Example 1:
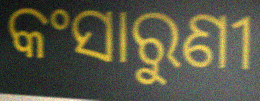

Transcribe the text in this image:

କଂସାରୁଣୀ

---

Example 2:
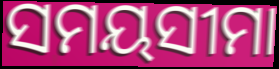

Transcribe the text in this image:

ସମୟସୀମା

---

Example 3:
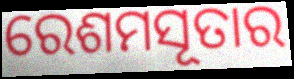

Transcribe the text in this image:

ରେଶମସୂତାର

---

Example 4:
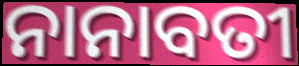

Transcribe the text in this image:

ନାନାବତୀ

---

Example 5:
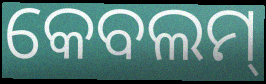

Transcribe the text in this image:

କେବଲମ୍